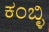
ಕಂಬ್ಳಿ